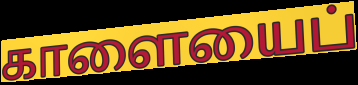
காளையைப்